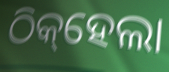
ଠିକ୍‌ହେଲା